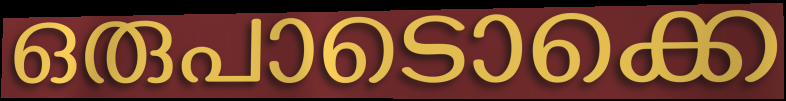
ഒരുപാടൊക്കെ